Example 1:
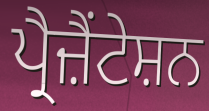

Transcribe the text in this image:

ਪ੍ਰੈਜ਼ੈਂਟੇਸ਼ਨ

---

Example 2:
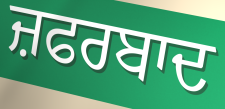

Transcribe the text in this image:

ਜ਼ਫਰਬਾਦ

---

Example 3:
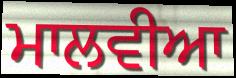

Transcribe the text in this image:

ਮਾਲਵੀਆ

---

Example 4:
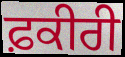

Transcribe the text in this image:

ਫ਼ਕੀਰੀ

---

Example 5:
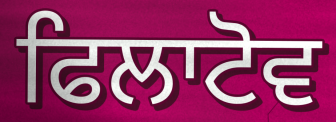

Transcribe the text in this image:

ਫਿਲਾਟੋਵ